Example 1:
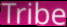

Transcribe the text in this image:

Tribe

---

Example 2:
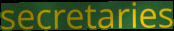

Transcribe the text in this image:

secretaries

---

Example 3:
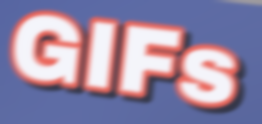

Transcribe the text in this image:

GIFs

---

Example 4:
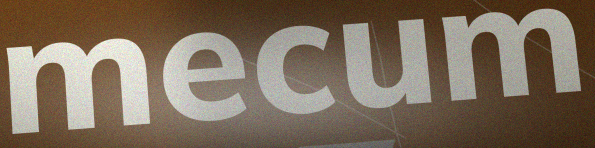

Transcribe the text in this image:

mecum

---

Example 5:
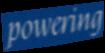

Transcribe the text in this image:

powering